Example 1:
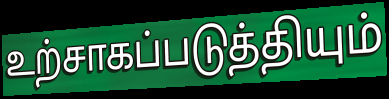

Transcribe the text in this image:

உற்சாகப்படுத்தியும்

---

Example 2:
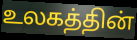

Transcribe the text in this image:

உலகத்தின்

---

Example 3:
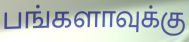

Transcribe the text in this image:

பங்களாவுக்கு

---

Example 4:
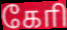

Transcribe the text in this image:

கேரி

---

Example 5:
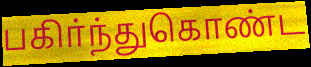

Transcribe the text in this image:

பகிர்ந்துகொண்ட